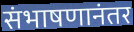
संभाषणानंतर